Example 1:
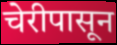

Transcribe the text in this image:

चेरीपासून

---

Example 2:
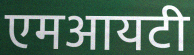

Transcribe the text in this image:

एमआयटी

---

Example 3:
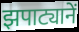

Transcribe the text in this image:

झपाट्यानें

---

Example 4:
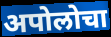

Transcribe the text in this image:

अपोलोचा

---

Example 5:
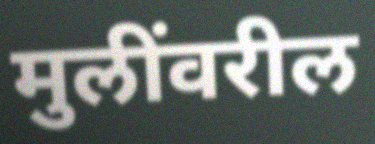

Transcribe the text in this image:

मुलींवरील